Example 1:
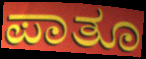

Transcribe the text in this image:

ಪಾತೂ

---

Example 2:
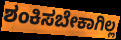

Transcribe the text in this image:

ಶಂಕಿಸಬೇಕಾಗಿಲ್ಲ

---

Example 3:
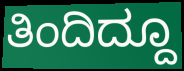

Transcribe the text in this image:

ತಿಂದಿದ್ದೂ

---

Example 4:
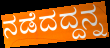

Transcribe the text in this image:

ನಡೆದದ್ದನ್ನ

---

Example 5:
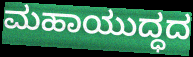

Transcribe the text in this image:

ಮಹಾಯುದ್ಧದ